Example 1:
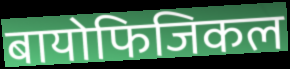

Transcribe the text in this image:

बायोफिजिकल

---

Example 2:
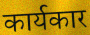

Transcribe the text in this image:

कार्यकार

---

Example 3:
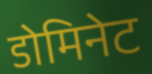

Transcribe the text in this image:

डोमिनेट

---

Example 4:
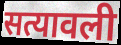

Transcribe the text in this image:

सत्यावली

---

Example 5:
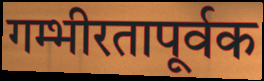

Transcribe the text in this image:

गम्भीरतापूर्वक